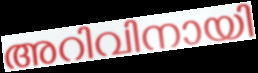
അറിവിനായി